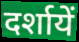
दर्शायें